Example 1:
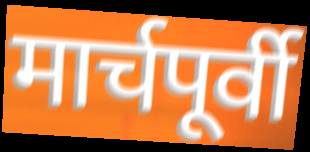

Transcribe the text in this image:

मार्चपूर्वी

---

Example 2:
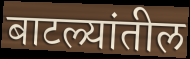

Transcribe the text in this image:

बाटल्यांतील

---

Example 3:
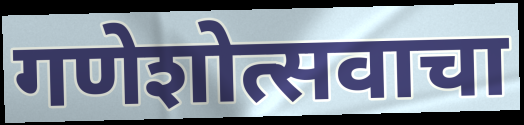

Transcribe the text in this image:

गणेशोत्सवाचा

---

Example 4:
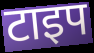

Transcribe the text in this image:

टाइप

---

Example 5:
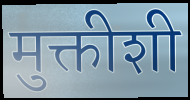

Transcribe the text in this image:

मुक्तीशी